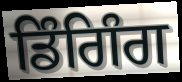
ਡਿੰਗਿੰਗ